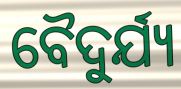
ବୈଦୁର୍ଯ୍ୟ